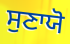
ਸੁਣਾਯੋ